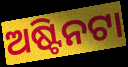
ଅଷ୍ଟିନଟା